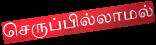
செருப்பில்லாமல்